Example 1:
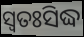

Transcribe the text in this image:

ସ୍ବତଃସିଦ୍ଧ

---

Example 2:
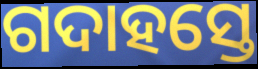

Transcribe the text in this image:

ଗଦାହସ୍ତେ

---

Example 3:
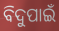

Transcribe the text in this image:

ବିଦୁପାଇଁ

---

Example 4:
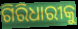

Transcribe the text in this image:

ଗିରିଧାରୀକୁ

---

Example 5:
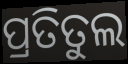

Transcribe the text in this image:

ପ୍ରତିତୁଲ